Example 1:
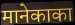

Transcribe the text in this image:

मानेकाका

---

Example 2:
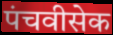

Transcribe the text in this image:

पंचवीसेक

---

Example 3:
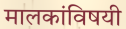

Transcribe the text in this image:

मालकांविषयी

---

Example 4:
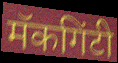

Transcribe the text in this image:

मॅकगिंटी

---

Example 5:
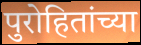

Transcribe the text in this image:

पुरोहितांच्या